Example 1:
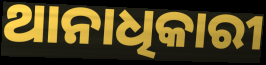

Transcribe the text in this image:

ଥାନାଧିକାରୀ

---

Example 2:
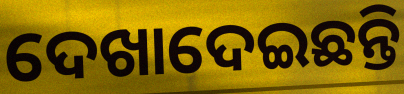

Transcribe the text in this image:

ଦେଖାଦେଇଛନ୍ତି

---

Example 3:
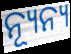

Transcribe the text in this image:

ନ୍ୟୂନ୍ୟ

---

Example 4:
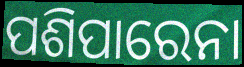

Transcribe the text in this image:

ପଶିପାରେନା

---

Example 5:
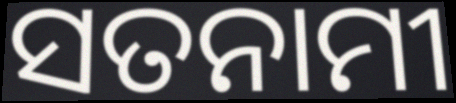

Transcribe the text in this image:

ସତନାମୀ